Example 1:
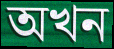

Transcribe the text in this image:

অখন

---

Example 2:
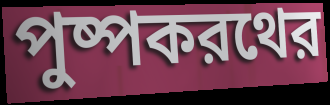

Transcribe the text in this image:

পুষ্পকরথের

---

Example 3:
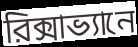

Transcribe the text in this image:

রিক্সাভ্যানে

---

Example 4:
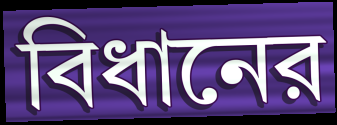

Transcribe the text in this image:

বিধানের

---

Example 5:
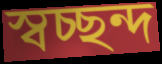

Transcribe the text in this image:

স্বচ্ছন্দ